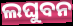
ଲଘୁବନ